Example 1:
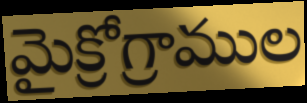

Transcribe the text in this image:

మైక్రోగ్రాముల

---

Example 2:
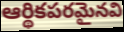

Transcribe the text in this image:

ఆర్థికపరమైనవి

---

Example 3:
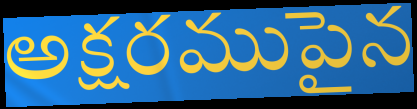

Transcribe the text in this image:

అక్షరముపైన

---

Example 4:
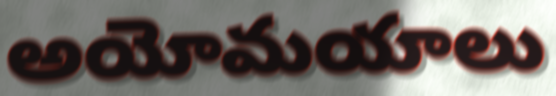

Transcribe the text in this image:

అయోమయాలు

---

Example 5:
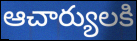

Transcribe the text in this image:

ఆచార్యులకి